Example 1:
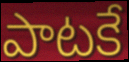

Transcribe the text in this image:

పాటకే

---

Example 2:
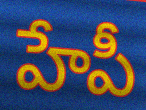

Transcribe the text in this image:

హేపీ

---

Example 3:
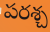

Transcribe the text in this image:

పరశ్చ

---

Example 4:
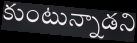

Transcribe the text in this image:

కుంటున్నాడని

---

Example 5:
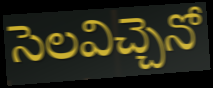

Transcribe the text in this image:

సెలవిచ్చెనో